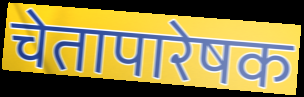
चेतापारेषक